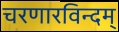
चरणारविन्दम्